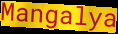
Mangalya